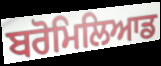
ਬਰੋਮਿਲਿਆਡ